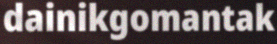
dainikgomantak